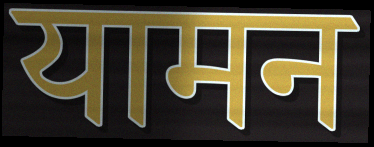
यामन